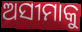
ଅସୀମାକୁ